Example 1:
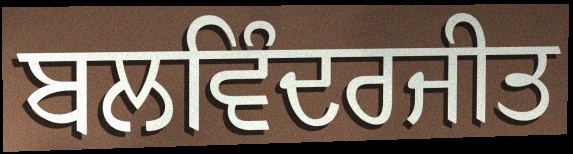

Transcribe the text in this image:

ਬਲਵਿੰਦਰਜੀਤ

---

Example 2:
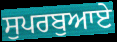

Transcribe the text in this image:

ਸੁਪਰਬੁਆਏ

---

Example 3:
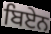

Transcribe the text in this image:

ਬਿਏਨ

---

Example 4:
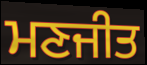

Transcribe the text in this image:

ਮਣਜੀਤ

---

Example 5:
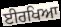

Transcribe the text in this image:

ਈਰਖਿਆ